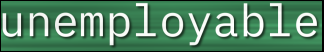
unemployable